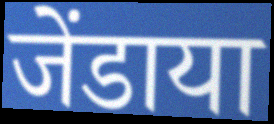
जेंडाया